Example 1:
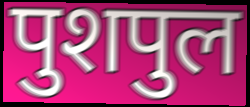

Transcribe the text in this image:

पुशपुल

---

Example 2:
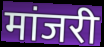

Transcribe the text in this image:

मांजरी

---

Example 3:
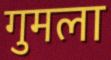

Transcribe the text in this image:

गुमला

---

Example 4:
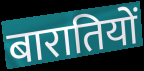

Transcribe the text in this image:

बारातियों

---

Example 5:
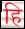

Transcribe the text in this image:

हि